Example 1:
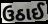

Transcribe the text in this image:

ઉઠાઈ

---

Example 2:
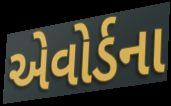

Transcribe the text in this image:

એવોર્ડના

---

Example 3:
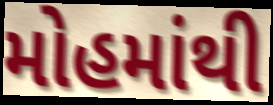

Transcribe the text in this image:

મોહમાંથી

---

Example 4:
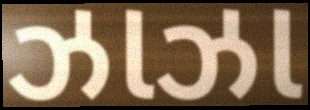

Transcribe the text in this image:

ઝાઝા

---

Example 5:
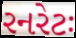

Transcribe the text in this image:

રનરેટઃ